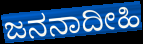
ಜನನಾದೀಹಿ